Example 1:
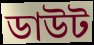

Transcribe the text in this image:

ডাউট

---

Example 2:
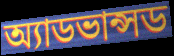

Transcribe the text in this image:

অ্যাডভান্সড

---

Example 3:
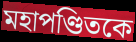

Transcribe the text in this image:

মহাপণ্ডিতকে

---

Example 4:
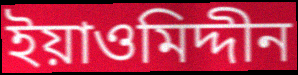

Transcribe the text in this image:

ইয়াওমিদ্দীন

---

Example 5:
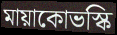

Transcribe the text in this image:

মায়াকোভস্কি